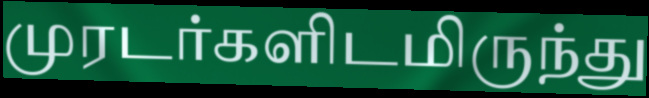
முரடர்களிடமிருந்து